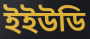
ইইউডি